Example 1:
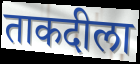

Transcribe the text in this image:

ताकदीला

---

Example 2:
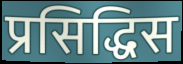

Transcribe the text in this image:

प्रसिद्धिस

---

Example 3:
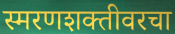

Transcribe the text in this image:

स्मरणशक्तीवरचा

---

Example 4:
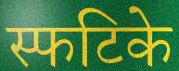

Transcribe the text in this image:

स्फटिके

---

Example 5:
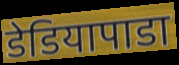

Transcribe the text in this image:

डेडियापाडा